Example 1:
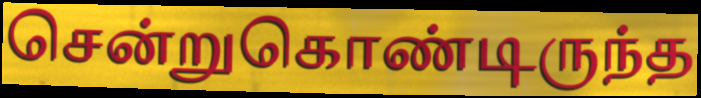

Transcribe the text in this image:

சென்றுகொண்டிருந்த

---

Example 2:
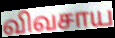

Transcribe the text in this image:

விவசாய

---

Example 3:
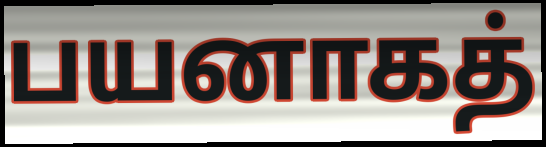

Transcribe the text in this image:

பயனாகத்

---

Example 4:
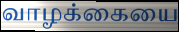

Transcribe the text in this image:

வாழக்கையை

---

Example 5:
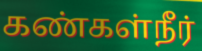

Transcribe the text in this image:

கண்கள்நீர்